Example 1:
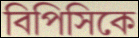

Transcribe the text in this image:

বিপিসিকে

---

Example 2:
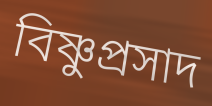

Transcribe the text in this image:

বিষ্ণুপ্রসাদ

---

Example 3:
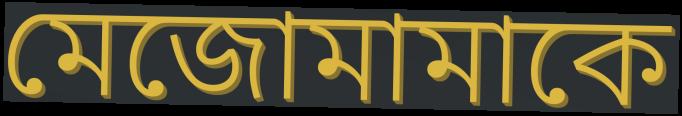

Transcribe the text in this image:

মেজোমামাকে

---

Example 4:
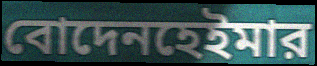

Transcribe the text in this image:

বোদেনহেইমার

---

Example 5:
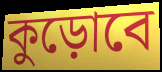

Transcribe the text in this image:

কুড়োবে